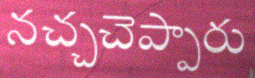
నచ్చచెప్పారు